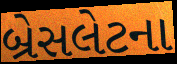
બ્રેસલેટના